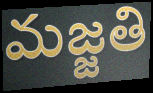
మజ్జతి